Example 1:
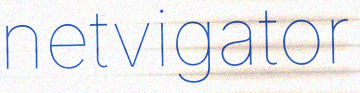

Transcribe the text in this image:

netvigator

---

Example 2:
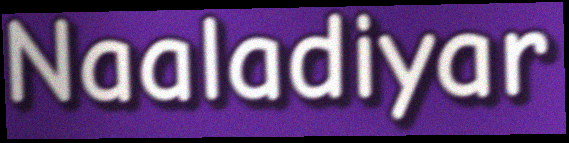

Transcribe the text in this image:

Naaladiyar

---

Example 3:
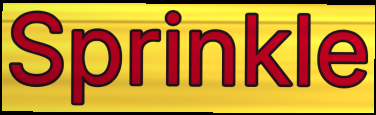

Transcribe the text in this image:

Sprinkle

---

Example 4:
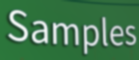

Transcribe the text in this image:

Samples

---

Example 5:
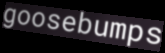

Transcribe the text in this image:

goosebumps